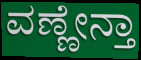
ವಣ್ಣೇನ್ತಾ